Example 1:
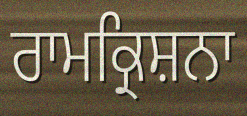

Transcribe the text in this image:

ਰਾਮਕ੍ਰਿਸ਼ਨਾ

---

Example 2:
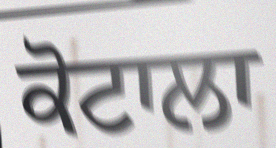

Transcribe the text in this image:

ਕੋਟਾਲਾ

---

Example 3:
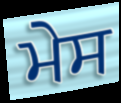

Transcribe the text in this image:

ਮੇਸ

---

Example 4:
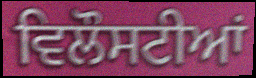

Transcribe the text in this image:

ਵਿਲੌਸਟੀਆਂ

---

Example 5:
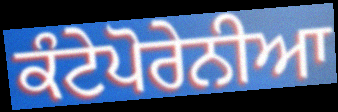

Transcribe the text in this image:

ਕੰਟੇਪੋਰੇਨੀਆ